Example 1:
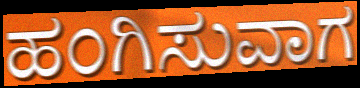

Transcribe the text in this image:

ಹಂಗಿಸುವಾಗ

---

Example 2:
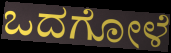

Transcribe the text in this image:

ಒದಗೋಳೆ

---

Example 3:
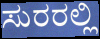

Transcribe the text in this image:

ಸುರರಲ್ಲಿ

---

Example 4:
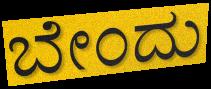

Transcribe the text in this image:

ಬೇಂದು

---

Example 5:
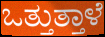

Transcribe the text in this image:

ಒತ್ತುತ್ತಾಳೆ